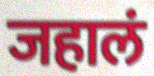
जहालं